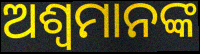
ଅଶ୍ୱମାନଙ୍କ